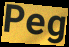
Peg